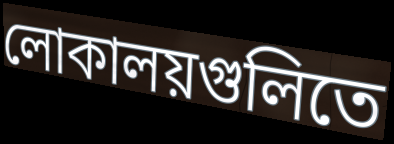
লোকালয়গুলিতে